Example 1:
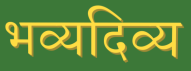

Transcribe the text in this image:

भव्यदिव्य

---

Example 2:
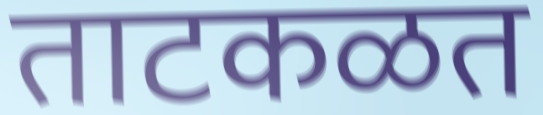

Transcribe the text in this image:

ताटकळत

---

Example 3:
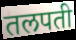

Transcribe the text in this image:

तलपती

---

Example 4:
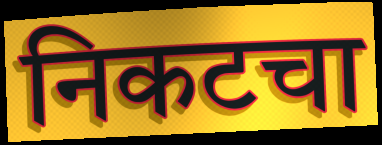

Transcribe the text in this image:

निकटचा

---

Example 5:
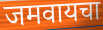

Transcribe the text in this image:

जमवायचा